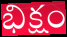
భిక్షం